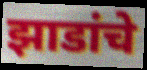
झाडांचे